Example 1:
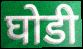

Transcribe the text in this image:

घोडी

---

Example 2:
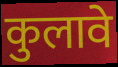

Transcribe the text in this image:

कुलावे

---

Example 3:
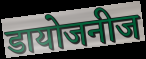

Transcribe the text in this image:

डायोजनीज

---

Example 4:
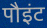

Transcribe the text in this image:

पौइंट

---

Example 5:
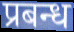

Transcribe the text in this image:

प्रबन्ध